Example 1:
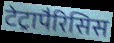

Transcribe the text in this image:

टेट्रापैरिसिस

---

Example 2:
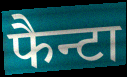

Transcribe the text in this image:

फैन्टा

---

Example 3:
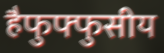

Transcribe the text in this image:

हैफुफ्फुसीय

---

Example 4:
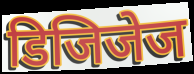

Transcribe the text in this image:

डिजिजेज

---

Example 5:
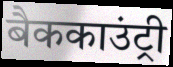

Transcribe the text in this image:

बैककाउंट्री